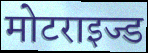
मोटराइज्ड